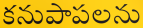
కనుపాపలను